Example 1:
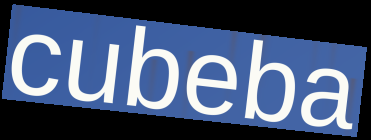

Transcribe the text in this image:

cubeba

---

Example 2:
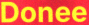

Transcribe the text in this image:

Donee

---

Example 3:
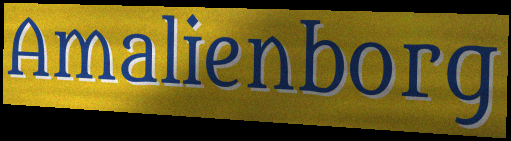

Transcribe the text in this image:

Amalienborg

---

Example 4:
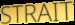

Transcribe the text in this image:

STRAIT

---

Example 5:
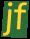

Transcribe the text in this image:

jf